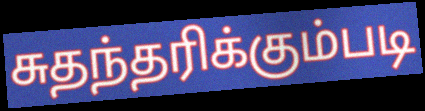
சுதந்தரிக்கும்படி